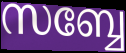
സബ്ബേ